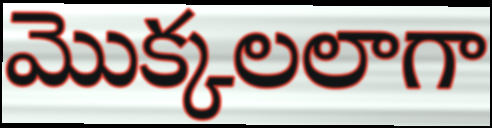
మొక్కలలాగా